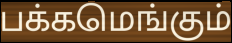
பக்கமெங்கும்